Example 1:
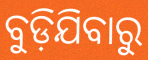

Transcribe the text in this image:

ବୁଡ଼ିଯିବାରୁ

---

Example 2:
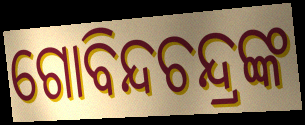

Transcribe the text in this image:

ଗୋବିନ୍ଦଚନ୍ଦ୍ରଙ୍କ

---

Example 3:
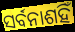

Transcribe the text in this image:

ସର୍ବନାଶହିଁ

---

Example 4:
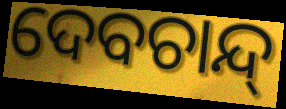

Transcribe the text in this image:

ଦେବଚାନ୍ଦ୍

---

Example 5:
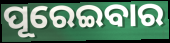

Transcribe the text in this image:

ପୂରେଇବାର